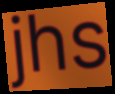
jhs